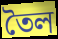
তৈল